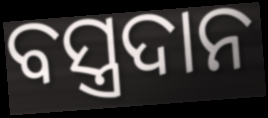
ବସ୍ତ୍ରଦାନ